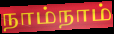
நாம்நாம்